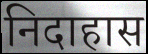
निदाहास